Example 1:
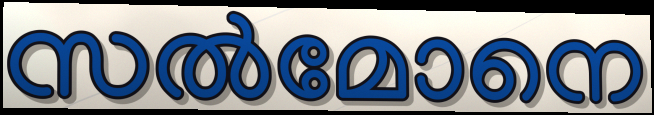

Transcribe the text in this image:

സൽമോനെ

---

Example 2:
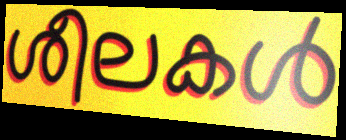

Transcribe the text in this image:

ശീലകൾ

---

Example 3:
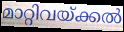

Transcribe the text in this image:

മാറ്റിവയ്ക്കൽ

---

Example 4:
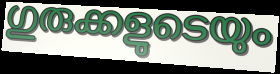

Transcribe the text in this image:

ഗുരുക്കളുടെയും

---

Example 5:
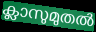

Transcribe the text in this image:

ക്ലാസുമുതൽ